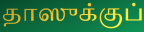
தாஸுக்குப்